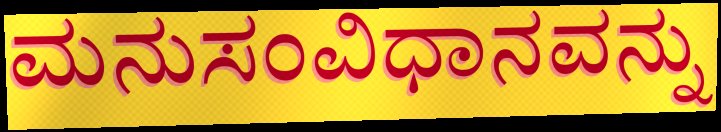
ಮನುಸಂವಿಧಾನವನ್ನು